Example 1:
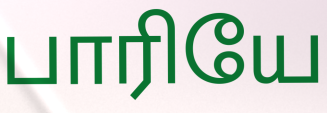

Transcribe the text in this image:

பாரியே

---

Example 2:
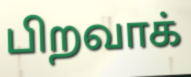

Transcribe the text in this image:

பிறவாக்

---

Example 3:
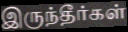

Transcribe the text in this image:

இருந்தீர்கள்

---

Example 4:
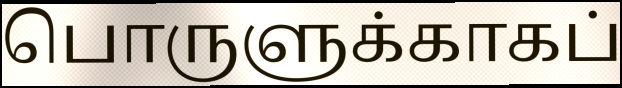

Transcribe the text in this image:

பொருளுக்காகப்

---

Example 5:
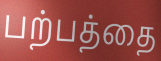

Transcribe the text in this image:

பற்பத்தை